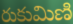
రుకుమిణి